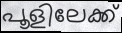
പൂളിലേക്ക്